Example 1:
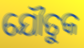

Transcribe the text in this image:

ଯୌତୁକ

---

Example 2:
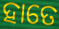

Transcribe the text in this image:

ହାତେ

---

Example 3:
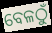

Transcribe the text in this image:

ବେଳଠୁଁ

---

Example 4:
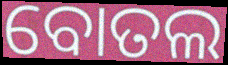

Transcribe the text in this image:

ବୋତଲ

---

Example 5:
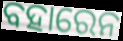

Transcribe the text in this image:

ବହାରେନ